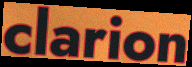
clarion